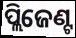
ପ୍ଲିଜେଣ୍ଟ